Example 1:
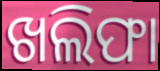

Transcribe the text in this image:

ଖଲିଫା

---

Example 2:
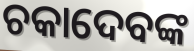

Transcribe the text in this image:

ଚକାଦେବଙ୍କ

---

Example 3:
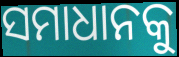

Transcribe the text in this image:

ସମାଧାନକୁ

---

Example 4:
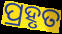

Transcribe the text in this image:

ପ୍ରହୃତ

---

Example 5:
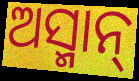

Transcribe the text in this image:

ଅସ୍ମାନ୍